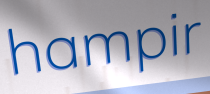
hampir